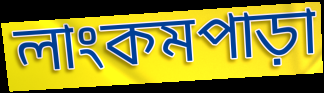
লাংকমপাড়া